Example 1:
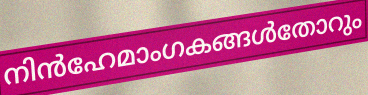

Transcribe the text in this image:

നിൻഹേമാംഗകങ്ങൾതോറും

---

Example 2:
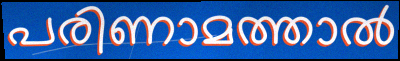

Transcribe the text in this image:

പരിണാമത്താൽ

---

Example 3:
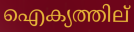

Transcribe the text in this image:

ഐക്യത്തില്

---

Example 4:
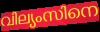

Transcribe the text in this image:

വില്യംസിനെ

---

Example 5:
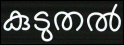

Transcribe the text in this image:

കുടുതൽ